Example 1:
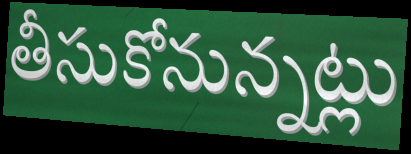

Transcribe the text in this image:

తీసుకోనున్నట్లు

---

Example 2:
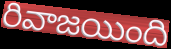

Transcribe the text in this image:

రివాజయింది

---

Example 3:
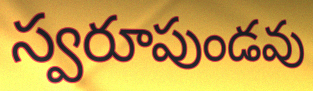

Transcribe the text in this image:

స్వరూపుండవు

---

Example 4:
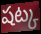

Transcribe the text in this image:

షట్క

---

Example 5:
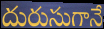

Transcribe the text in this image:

దురుసుగానే